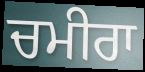
ਚਮੀਰਾ